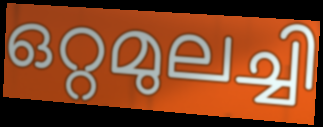
ഒറ്റമുലച്ചി